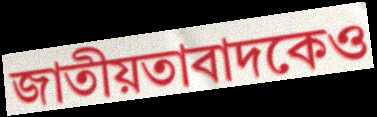
জাতীয়তাবাদকেও